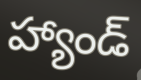
హ్యాండ్